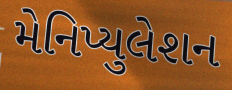
મેનિપ્યુલેશન